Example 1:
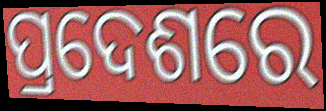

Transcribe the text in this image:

ପ୍ରଦେଶରେ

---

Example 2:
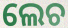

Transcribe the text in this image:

ଲେଚ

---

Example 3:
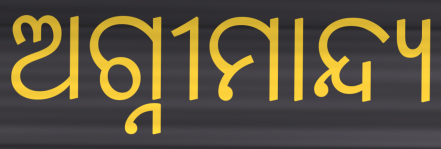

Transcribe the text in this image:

ଅଗ୍ନୀମାନ୍ଦ୍ୟ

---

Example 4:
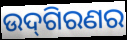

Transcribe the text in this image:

ଉଦ୍‌ଗିରଣର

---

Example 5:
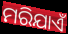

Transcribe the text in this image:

ମରିଯାଏଁ